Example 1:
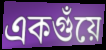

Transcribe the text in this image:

একগুঁয়ে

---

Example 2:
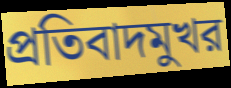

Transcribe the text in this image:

প্রতিবাদমুখর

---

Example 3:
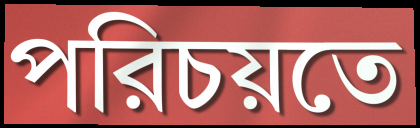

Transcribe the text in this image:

পরিচয়তে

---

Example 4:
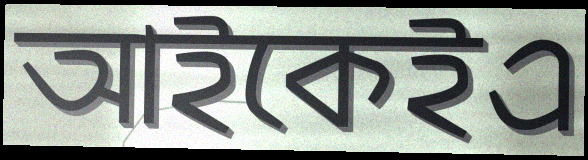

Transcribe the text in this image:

আইকেইএ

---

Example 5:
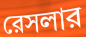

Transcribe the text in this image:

রেসলার